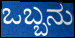
ಒಬ್ಬನು